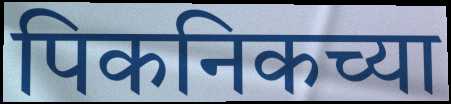
पिकनिकच्या